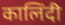
कालिंदी